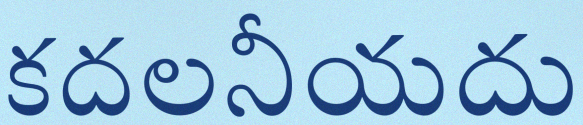
కదలనీయదు